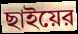
ছাইয়ের